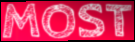
MOST